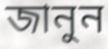
জানুন